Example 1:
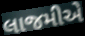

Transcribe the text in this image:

લાજમીએ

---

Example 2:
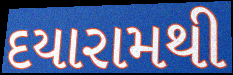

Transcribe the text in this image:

દયારામથી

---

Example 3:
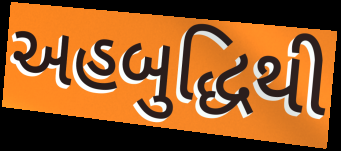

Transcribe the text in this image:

અહબુદ્ધિથી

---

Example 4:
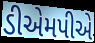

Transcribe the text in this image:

ડીએમપીએ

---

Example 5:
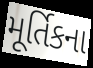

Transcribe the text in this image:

મૂર્તિકના